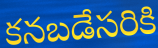
కనబడేసరికి